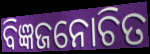
ବିଜ୍ଞଜନୋଚିତ